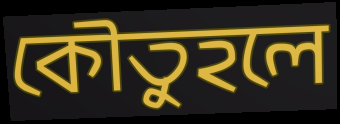
কৌতুহলে